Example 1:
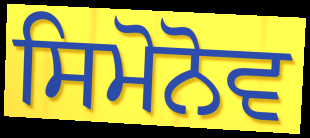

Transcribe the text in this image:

ਸਿਮੋਨੋਵ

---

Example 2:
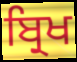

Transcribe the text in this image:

ਬ੍ਰਿਖ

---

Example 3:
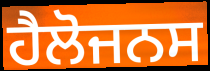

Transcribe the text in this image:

ਹੈਲੋਜਨਸ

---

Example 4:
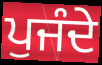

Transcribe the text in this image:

ਪੁਜੰਦੇ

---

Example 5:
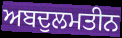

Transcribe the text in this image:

ਅਬਦੁਲਮਤੀਨ